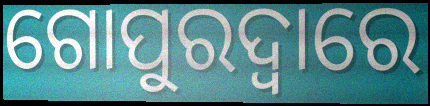
ଗୋପୁରଦ୍ଵାରେ